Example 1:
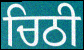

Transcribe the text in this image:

ਚਿਠੀ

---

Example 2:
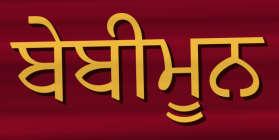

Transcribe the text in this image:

ਬੇਬੀਮੂਨ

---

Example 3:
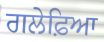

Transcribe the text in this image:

ਗਲੇਫ਼ਿਆ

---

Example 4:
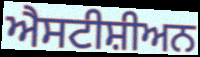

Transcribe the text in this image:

ਐਸਟੀਸ਼ੀਅਨ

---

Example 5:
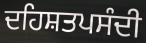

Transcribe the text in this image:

ਦਹਿਸ਼ਤਪਸੰਦੀ